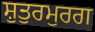
ਸ਼ੁਤੁਰਮੁਰਗ